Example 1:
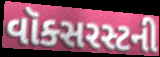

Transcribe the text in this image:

વૉક્સરસ્ટની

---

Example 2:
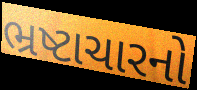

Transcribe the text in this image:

ભ્રષ્ટાચારનો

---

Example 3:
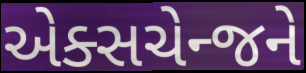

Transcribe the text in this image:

એક્સચેન્જને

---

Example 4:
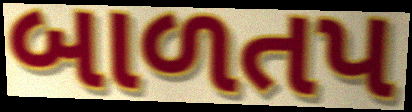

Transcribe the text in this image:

બાળતપ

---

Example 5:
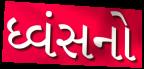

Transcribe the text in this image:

ધ્વંસનો